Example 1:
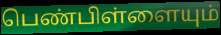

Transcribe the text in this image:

பெண்பிள்ளையும்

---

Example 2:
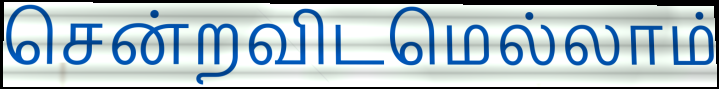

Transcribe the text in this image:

சென்றவிடமெல்லாம்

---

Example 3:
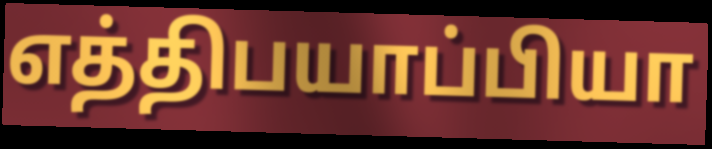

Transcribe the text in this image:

எத்திபயாப்பியா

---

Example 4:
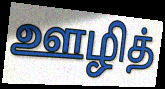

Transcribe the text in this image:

ஊழித்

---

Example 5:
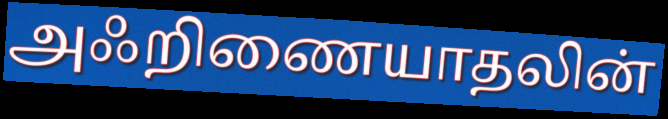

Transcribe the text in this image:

அஃறிணையாதலின்